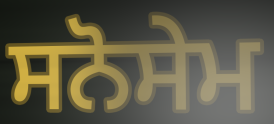
ਸਨੋਸੇਮ